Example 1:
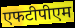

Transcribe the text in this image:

एफटीपीएम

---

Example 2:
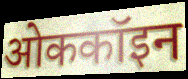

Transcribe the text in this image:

ओककॉइन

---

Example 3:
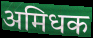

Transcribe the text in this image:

अमिधक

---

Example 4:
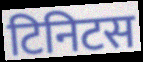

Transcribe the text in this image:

टिनिटस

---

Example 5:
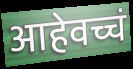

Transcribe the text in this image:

आहेवच्चं